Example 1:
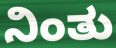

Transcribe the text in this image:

ನಿಂತು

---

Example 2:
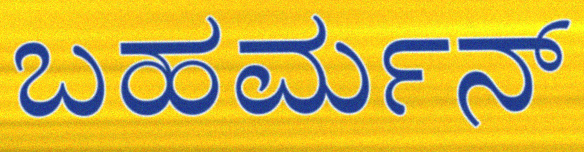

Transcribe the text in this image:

ಬಹರ್ಮನ್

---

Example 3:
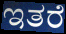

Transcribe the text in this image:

ಇತರೆ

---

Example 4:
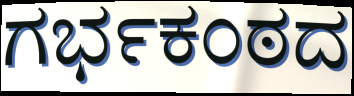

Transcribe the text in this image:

ಗರ್ಭಕಂಠದ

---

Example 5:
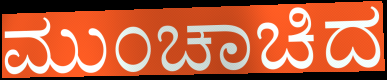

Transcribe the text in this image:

ಮುಂಚಾಚಿದ